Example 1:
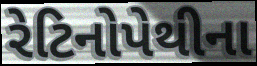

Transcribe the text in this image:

રેટિનોપેથીના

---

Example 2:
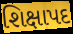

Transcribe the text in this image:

શિક્ષાપદ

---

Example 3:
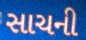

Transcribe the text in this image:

સાચની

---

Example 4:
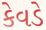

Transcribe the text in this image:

કેવડે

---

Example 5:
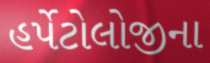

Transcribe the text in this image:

હર્પેટોલોજીના